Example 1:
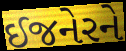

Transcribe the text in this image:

ઈજનેરને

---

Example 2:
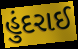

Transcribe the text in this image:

હુંદરાઈ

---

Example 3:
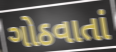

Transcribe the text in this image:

ગોઠવાતાં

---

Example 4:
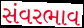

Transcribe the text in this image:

સંવરભાવ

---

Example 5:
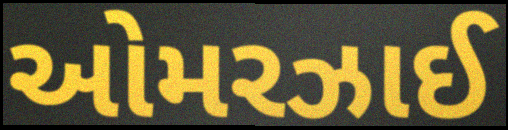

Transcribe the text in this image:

ઓમરઝાઈ